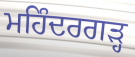
ਮਹਿੰਦਰਗੜ੍ਹ